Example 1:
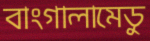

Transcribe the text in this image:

বাংগালামেডু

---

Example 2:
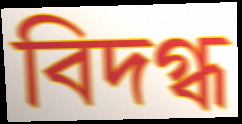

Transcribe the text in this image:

বিদগ্ধ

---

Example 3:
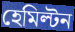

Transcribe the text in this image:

হেমিল্টন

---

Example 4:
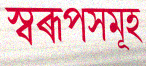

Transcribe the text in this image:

স্বৰূপসমূহ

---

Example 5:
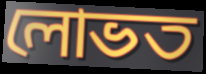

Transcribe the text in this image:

লোভত